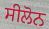
ਸੀਲੋਨ